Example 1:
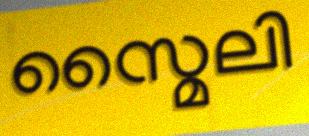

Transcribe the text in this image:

സ്മൈലി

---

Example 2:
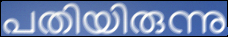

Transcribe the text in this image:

പതിയിരുന്നു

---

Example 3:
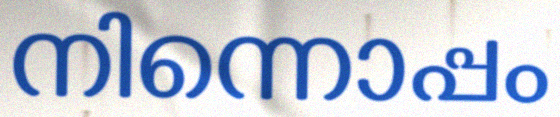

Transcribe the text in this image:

നിന്നൊപ്പം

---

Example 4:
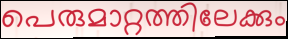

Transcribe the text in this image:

പെരുമാറ്റത്തിലേക്കും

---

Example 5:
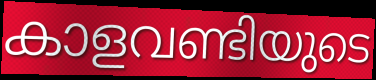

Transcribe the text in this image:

കാളവണ്ടിയുടെ